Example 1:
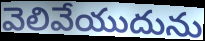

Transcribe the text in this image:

వెలివేయుదును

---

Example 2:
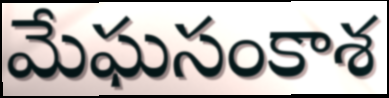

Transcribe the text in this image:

మేఘసంకాశ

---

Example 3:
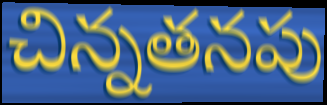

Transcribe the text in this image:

చిన్నతనపు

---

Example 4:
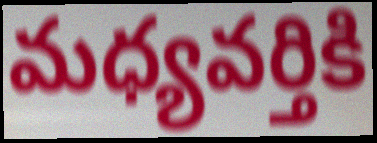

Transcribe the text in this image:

మధ్యవర్తికి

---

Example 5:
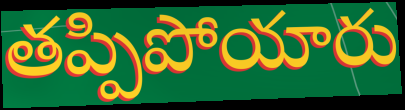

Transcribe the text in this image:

తప్పిపోయారు